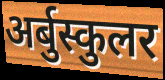
अर्बुस्कुलर